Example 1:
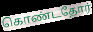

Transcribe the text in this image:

கொண்டதோர்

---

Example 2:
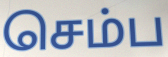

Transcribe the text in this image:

செம்ப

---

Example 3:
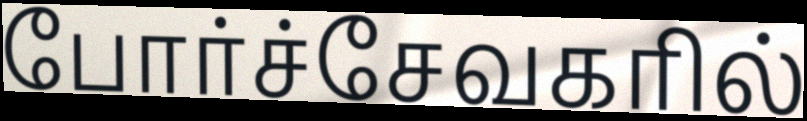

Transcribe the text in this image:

போர்ச்சேவகரில்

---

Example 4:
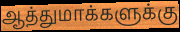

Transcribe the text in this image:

ஆத்துமாக்களுக்கு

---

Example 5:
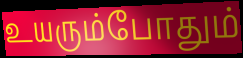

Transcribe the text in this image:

உயரும்போதும்